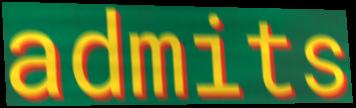
admits